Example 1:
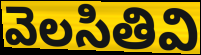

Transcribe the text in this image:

వెలసితివి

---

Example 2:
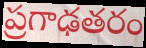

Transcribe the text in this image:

ప్రగాఢతరం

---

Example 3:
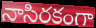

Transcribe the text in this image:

నాసిరకంగా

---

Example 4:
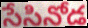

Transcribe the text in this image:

సేసినోడ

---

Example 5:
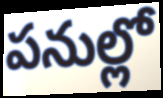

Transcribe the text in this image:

పనుల్లో